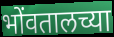
भोंवतालच्या